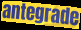
antegrade